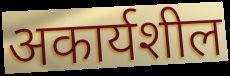
अकार्यशील